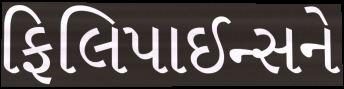
ફિલિપાઈન્સને